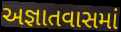
અજ્ઞાતવાસમાં